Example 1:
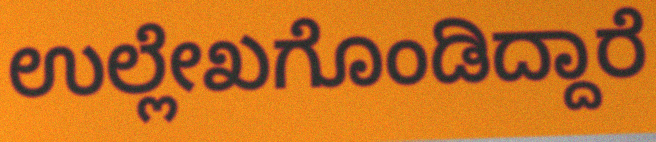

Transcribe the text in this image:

ಉಲ್ಲೇಖಗೊಂಡಿದ್ದಾರೆ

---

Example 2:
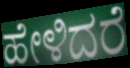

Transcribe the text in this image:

ಹೇಳಿದರೆ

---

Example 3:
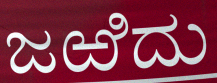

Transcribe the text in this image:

ಜಱಿದು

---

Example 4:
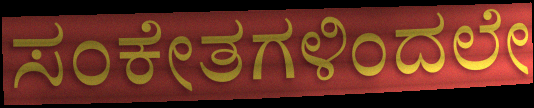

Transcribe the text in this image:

ಸಂಕೇತಗಳಿಂದಲೇ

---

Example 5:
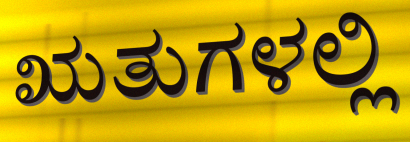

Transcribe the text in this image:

ಋತುಗಳಲ್ಲಿ